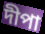
দীপা